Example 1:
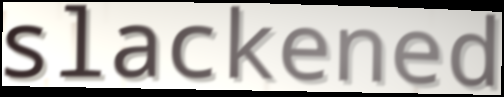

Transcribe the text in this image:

slackened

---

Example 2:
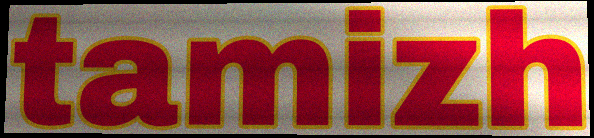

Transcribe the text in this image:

tamizh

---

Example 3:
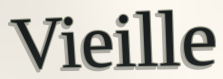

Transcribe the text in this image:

Vieille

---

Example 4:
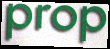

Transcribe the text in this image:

prop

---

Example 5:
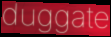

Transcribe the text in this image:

duggate